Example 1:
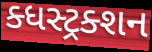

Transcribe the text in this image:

ક્ધસ્ટ્રક્શન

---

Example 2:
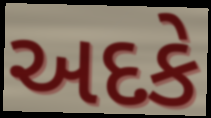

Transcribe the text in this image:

અદકે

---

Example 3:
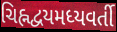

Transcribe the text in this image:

ચિહ્નદ્વયમધ્યવર્તી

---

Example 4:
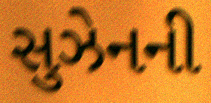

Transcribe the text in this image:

સુઝેનની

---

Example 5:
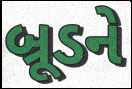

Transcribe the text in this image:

બ્રૂડને